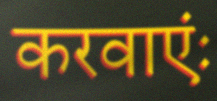
करवाएंः